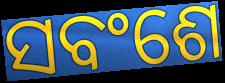
ସବଂଶେ